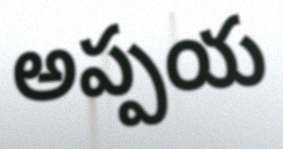
అప్పయ